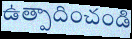
ఉత్పాదించండి